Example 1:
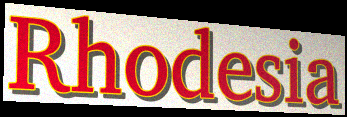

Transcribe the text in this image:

Rhodesia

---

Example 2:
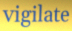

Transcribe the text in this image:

vigilate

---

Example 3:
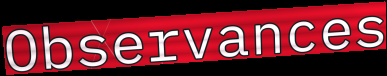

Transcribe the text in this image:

Observances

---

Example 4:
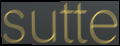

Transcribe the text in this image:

sutte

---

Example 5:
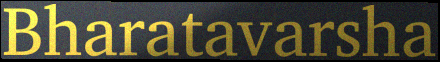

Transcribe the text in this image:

Bharatavarsha